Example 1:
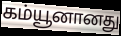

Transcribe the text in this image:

கம்யூனானது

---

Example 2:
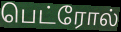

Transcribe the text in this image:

பெட்ரோல்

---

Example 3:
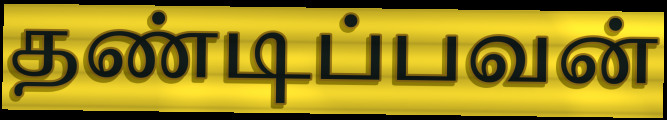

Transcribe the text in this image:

தண்டிப்பவன்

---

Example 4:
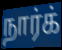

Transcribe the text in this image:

நார்க்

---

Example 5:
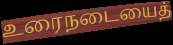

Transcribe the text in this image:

உரைநடையைத்